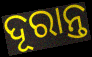
ଦୂରାନ୍ତ